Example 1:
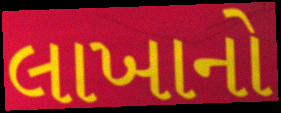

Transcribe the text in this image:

લાખાનો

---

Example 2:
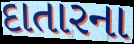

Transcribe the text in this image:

દાતારના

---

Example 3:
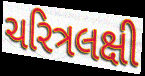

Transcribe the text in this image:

ચરિત્રલક્ષી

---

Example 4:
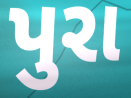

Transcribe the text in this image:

પુરા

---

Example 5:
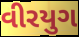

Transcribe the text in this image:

વીરયુગ